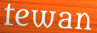
tewan